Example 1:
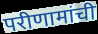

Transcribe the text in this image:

परीणामांची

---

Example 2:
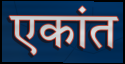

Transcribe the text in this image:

एकांत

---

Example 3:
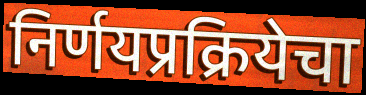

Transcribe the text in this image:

निर्णयप्रक्रियेचा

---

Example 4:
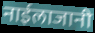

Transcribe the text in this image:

नाईलाजानी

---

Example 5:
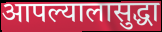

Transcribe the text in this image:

आपल्यालासुद्धा